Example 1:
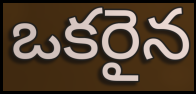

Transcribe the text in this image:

ఒకరైన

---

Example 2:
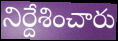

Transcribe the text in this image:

నిర్దేశించారు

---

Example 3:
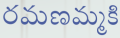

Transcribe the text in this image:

రమణమ్మకి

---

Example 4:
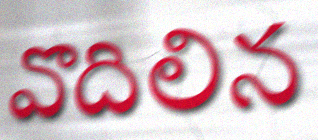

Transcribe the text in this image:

వొదిలిన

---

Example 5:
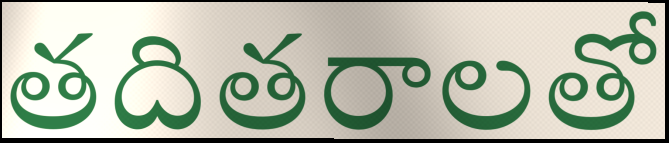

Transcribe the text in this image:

తదితరాలతో